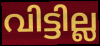
വിട്ടില്ല